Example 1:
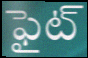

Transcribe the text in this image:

ఫైట్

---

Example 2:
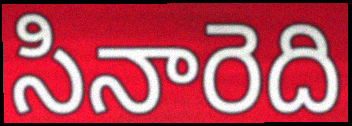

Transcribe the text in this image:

సినారెది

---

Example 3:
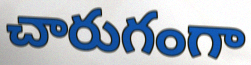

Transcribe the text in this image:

చారుగంగా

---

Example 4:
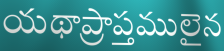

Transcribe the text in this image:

యథాప్రాప్తములైన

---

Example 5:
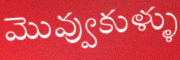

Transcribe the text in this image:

మొవ్వుకుళ్ళు